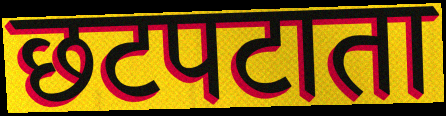
छटपटाता